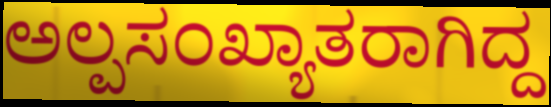
ಅಲ್ಪಸಂಖ್ಯಾತರಾಗಿದ್ದ